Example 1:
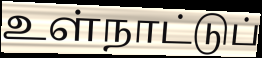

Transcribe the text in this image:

உள்நாட்டுப்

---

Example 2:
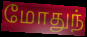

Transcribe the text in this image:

மோதுந்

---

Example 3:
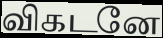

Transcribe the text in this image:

விகடனே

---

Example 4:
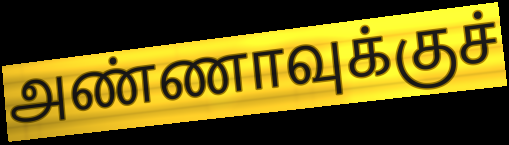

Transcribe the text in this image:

அண்ணாவுக்குச்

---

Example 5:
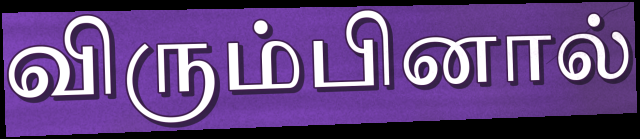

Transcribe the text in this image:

விரும்பினால்